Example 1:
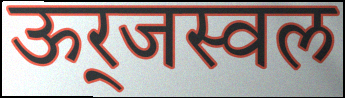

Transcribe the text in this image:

ऊर्जस्वल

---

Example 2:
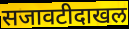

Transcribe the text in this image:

सजावटीदाखल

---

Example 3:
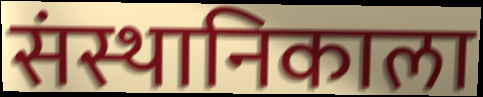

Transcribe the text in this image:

संस्थानिकाला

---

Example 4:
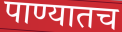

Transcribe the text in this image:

पाण्यातच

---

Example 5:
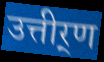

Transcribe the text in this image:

उत्तीर्ण